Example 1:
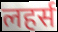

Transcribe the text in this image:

लहर्स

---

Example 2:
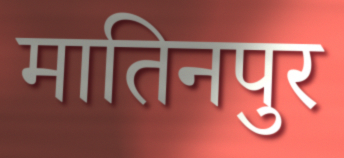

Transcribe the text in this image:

मातिनपुर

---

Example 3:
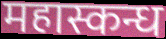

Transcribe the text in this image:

महास्कन्ध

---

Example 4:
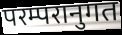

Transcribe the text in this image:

परम्परानुगत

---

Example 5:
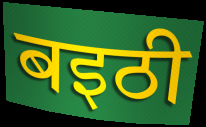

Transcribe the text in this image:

बइठी